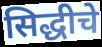
सिद्धीचे